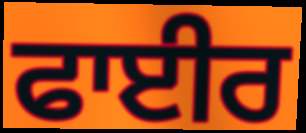
ਫਾਈਰ